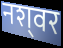
नश्वर